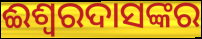
ଈଶ୍ଵରଦାସଙ୍କର